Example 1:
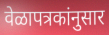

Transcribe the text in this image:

वेळापत्रकांनुसार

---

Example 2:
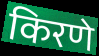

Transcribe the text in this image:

किरणे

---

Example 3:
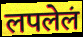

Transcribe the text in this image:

लपलेलं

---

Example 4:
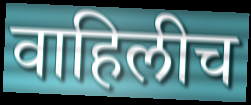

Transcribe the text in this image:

वाहिलीच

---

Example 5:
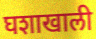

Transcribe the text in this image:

घशाखाली